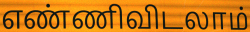
எண்ணிவிடலாம்